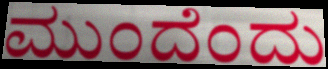
ಮುಂದೆಂದು